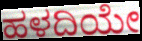
ಹಳದಿಯೇ